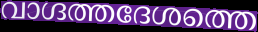
വാഗ്ദത്തദേശത്തെ